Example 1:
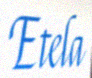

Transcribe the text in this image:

Etela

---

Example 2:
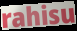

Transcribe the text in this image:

rahisu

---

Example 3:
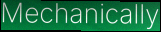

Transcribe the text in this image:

Mechanically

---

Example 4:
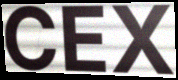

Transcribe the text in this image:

CEX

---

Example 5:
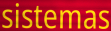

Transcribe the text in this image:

sistemas